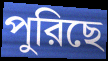
পুরিছে